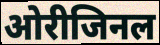
ओरीजिनल